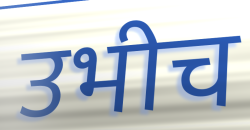
उभीच